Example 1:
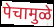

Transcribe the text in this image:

पेचामुळे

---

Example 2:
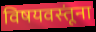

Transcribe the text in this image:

विषयवस्तूंना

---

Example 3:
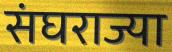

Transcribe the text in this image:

संघराज्या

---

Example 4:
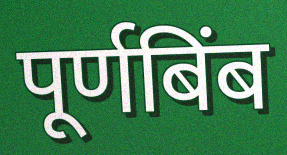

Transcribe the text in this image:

पूर्णबिंब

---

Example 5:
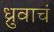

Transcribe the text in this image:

ध्रुवाचं